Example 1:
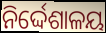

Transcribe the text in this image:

ନିର୍ଦ୍ଦେଶାଳୟ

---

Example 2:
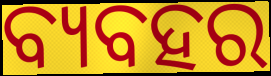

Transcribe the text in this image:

ବ୍ଯବହର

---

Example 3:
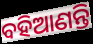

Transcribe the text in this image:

ବହିଆଣନ୍ତି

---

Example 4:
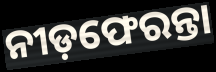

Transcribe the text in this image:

ନୀଡ଼ଫେରନ୍ତା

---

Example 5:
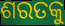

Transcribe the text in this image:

ଶରତକୁ